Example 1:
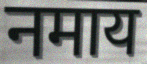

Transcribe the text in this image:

नमाय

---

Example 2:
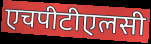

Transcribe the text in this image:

एचपीटीएलसी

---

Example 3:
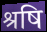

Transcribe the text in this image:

श्रषि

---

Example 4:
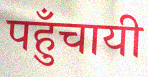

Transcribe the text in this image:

पहुँचायी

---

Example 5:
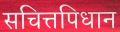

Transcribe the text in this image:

सचित्तपिधान